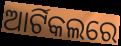
ଆର୍ଟିକଲରେ